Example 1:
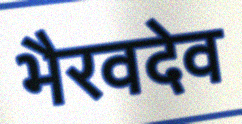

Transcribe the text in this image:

भैरवदेव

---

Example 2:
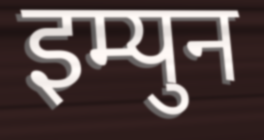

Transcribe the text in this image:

इम्‍युन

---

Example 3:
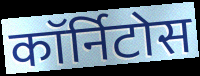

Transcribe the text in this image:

कॉर्निटोस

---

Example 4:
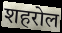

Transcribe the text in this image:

शहरोल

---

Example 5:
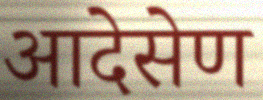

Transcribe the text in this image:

आदेसेण